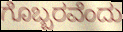
ಗೊಬ್ಬರವೆಂದು